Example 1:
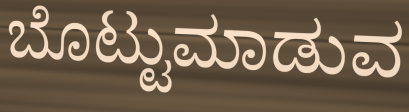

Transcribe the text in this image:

ಬೊಟ್ಟುಮಾಡುವ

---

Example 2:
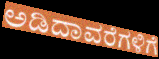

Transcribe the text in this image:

ಅಡಿದಾವರೆಗಳಿಗೆ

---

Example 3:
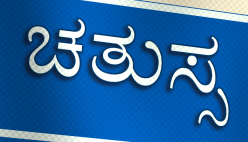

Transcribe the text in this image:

ಚತುಸ್ಸ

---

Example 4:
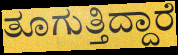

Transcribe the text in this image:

ತೂಗುತ್ತಿದ್ದಾರೆ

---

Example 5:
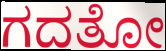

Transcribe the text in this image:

ಗದತೋ